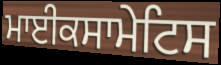
ਮਾਈਕਸਾਮੇਟਿਸ